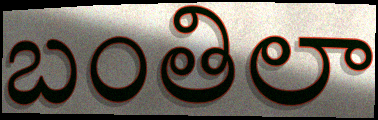
బంతిలా